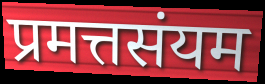
प्रमत्तसंयम